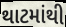
થાટમાંથી